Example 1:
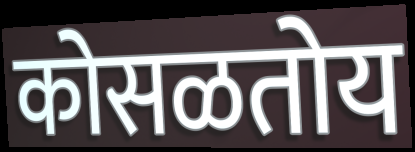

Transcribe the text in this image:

कोसळतोय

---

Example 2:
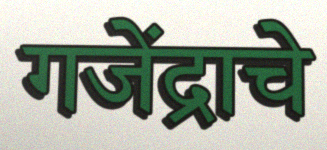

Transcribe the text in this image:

गजेंद्राचे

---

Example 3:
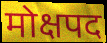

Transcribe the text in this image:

मोक्षपद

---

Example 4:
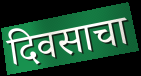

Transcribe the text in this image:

दिवसाचा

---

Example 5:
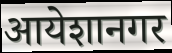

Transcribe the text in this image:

आयेशानगर